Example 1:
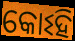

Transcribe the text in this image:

କୋଽହି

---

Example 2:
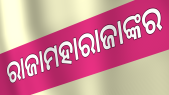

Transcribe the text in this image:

ରାଜାମହାରାଜାଙ୍କର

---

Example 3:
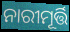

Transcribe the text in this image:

ନାରୀମୂର୍ତ୍ତି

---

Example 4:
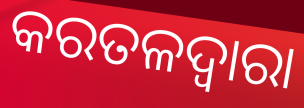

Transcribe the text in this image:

କରତଳଦ୍ୱାରା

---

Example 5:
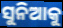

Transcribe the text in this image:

ସୁନିଆକୁ